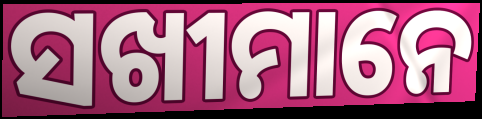
ସଖୀମାନେ